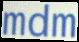
mdm